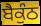
ਬੈਕੁੰਠ